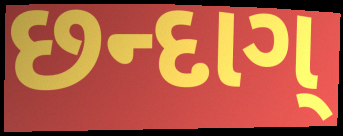
છન્દાગ્